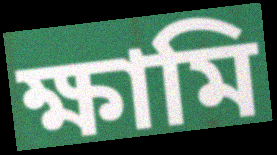
ক্ষামি